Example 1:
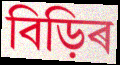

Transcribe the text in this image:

বিড়িৰ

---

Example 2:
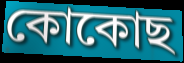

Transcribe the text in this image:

কোকোছ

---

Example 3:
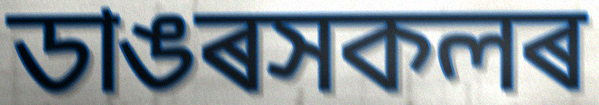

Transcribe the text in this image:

ডাঙৰসকলৰ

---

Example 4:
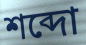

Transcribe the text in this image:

শব্দো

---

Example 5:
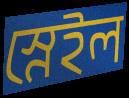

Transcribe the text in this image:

স্নেইল